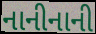
નાનીનાની